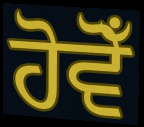
ਹੋਵੋਁ